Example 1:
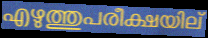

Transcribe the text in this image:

എഴുത്തുപരീക്ഷയില്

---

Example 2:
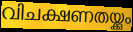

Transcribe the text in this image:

വിചക്ഷണതയ്ക്കും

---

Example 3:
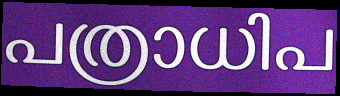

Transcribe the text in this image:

പത്രാധിപ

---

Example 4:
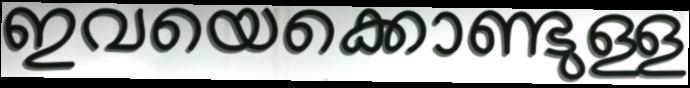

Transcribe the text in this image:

ഇവയെക്കൊണ്ടുള്ള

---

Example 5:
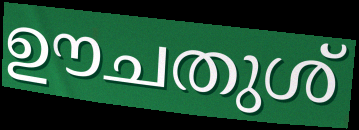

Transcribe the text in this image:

ഊചതുശ്